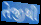
તેજીથી